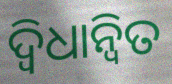
ଦ୍ଵିଧାନ୍ୱିତ